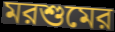
মরশুমের